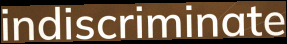
indiscriminate